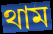
থাম